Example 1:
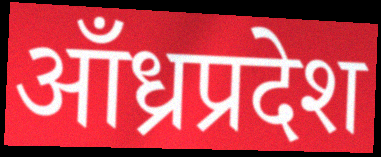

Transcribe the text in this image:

आँध्रप्रदेश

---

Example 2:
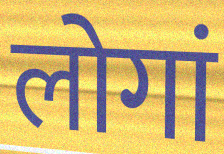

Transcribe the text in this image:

लोगां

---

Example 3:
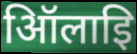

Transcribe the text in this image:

ऑिलाइि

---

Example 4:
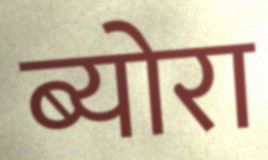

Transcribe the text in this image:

ब्योरा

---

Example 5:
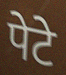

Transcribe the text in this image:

पेटे